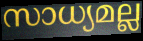
സാധ്യമല്ല